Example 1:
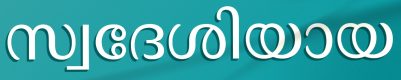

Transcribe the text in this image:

സ്വദേശിയായ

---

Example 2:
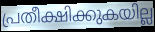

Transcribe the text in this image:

പ്രതീക്ഷിക്കുകയില്ല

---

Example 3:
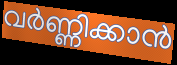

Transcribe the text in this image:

വർണ്ണിക്കാൻ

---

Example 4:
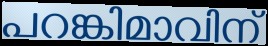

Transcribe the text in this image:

പറങ്കിമാവിന്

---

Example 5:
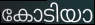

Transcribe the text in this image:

കോടിയാ